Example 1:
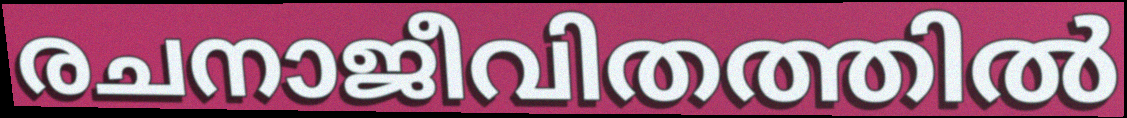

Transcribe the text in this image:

രചനാജീവിതത്തിൽ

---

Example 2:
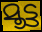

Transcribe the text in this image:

മൂട്ട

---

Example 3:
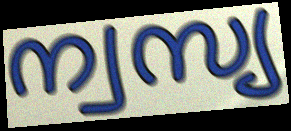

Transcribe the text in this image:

ന്വസ്യ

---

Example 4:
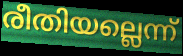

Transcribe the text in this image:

രീതിയല്ലെന്ന്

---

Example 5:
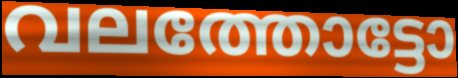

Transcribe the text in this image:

വലത്തോട്ടോ